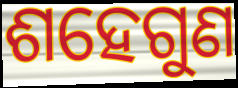
ଶହେଗୁଣ